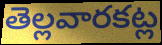
తెల్లవారకట్ల